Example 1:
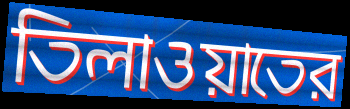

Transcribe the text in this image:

তিলাওয়াতের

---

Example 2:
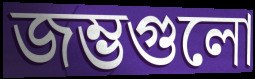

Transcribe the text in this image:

জম্ভগুলো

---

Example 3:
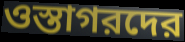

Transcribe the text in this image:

ওস্তাগরদের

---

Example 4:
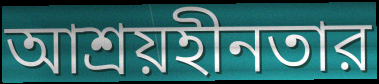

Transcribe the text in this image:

আশ্রয়হীনতার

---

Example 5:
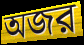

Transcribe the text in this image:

অজর